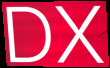
DX